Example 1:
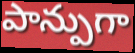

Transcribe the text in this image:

పాన్పుగా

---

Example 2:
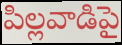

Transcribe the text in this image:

పిల్లవాడిపై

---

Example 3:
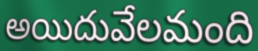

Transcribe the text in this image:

అయిదువేలమంది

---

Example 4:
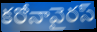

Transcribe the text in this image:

కరోనావైరస్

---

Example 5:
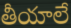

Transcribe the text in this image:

తీయాలే